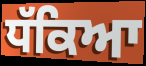
ਧੱਕਿਆ